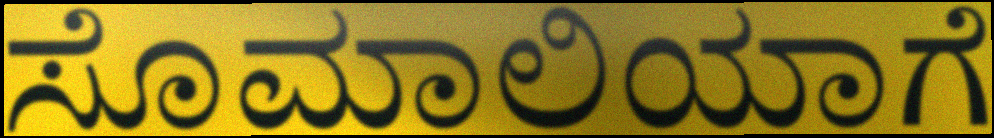
ಸೊಮಾಲಿಯಾಗೆ